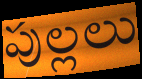
పుల్లలు